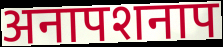
अनापशनाप